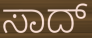
ಸಾದ್